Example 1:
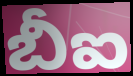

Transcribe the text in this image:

బీఐ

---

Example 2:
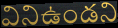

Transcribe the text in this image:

వినిఉండని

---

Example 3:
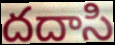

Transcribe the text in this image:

దదాసి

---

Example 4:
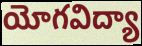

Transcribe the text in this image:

యోగవిద్యా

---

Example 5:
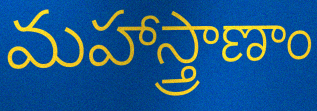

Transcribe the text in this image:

మహాస్త్రాణాం